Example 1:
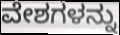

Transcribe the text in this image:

ವೇಶಗಳನ್ನು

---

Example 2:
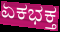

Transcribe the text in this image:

ಏಕಭಕ್ತ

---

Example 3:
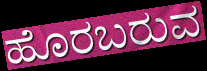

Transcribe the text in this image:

ಹೊರಬರುವ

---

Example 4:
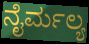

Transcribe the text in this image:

ನೈರ್ಮಲ್ಯ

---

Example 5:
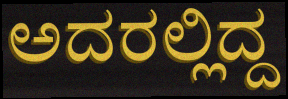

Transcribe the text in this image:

ಅದರಲ್ಲಿದ್ದ